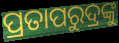
ପ୍ରତାପରୁଦ୍ରଙ୍କୁ